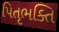
પિતૃભક્તિ